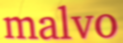
malvo